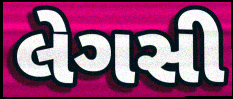
લેગસી